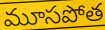
మూసపోత